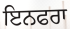
ਇਨਫਰਾ